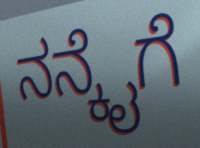
ನನ್ಕೈಗೆ